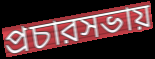
প্রচারসভায়